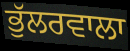
ਭੁੱਲਰਵਾਲਾ